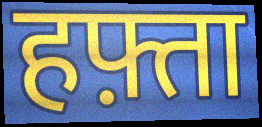
हफ़्ता